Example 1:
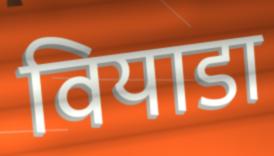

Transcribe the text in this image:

वियाडा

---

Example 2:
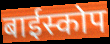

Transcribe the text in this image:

बाईस्कोप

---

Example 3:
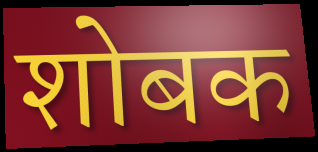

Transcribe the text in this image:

शोबक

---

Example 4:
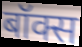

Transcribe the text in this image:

बॉक्स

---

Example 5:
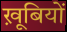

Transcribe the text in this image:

ख़ूबियों